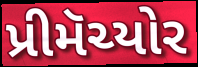
પ્રીમૅચ્યોર